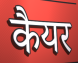
कैयर